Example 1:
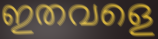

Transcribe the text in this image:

ഇതവളെ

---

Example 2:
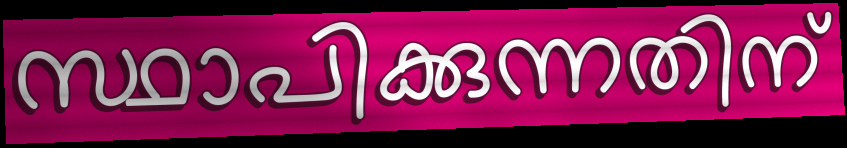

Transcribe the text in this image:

സ്ഥാപിക്കുന്നതിന്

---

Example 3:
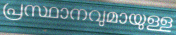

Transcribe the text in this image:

പ്രസ്ഥാനവുമായുള്ള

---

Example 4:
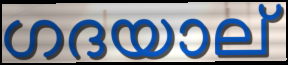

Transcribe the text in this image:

ഗദയാല്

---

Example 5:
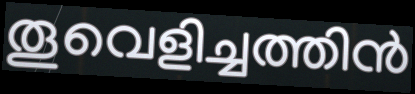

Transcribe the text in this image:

തൂവെളിച്ചത്തിൻ